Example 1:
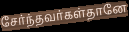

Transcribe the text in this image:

சேர்ந்தவர்கள்தானே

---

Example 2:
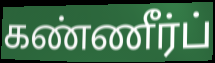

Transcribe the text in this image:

கண்ணீர்ப்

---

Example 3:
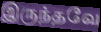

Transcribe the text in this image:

இருந்தவே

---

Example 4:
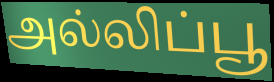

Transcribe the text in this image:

அல்லிப்பூ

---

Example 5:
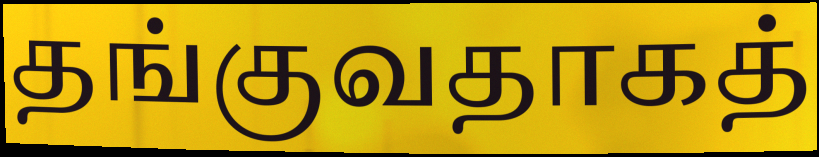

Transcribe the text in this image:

தங்குவதாகத்